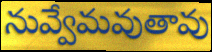
నువ్వేమవుతావు